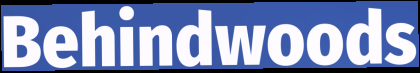
Behindwoods